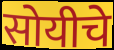
सोयीचे